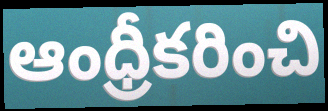
ఆంధ్రీకరించి